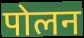
पोलन